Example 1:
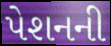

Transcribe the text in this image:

પેશનની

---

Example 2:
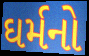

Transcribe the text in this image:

ઘર્મનો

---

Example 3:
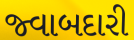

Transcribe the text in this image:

જ્વાબદારી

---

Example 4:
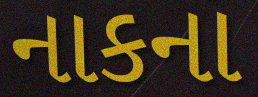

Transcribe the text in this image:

નાકના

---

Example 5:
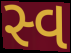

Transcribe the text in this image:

સ્વ